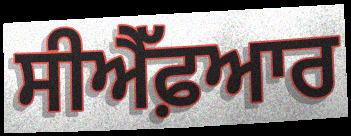
ਸੀਐੱਫ਼ਆਰ